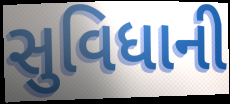
સુવિધાની